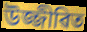
উজ্জীৱিত